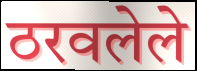
ठरवलेले